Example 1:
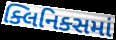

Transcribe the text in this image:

ક્લિનિક્સમાં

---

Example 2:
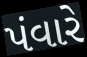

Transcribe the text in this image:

પંવારે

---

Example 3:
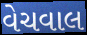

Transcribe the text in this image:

વેચવાલ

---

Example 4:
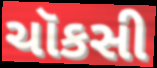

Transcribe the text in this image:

ચૉકસી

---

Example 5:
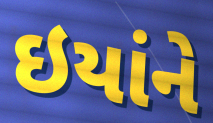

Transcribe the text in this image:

ઇયાંને